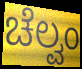
ಚೆಲ್ವಂ